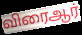
விரைஆர்